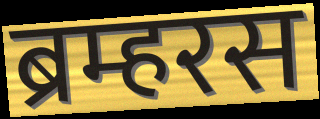
ब्रम्हरस